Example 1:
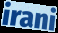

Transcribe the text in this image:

irani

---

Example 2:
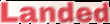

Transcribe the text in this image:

Landed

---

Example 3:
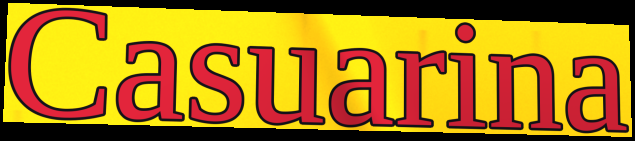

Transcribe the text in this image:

Casuarina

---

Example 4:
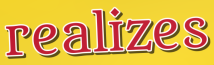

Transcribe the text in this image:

realizes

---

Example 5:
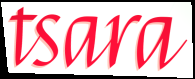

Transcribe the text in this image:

tsara